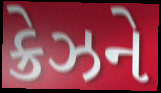
ક્રેઝને